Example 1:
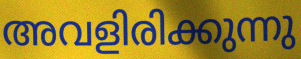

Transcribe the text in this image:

അവളിരിക്കുന്നു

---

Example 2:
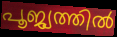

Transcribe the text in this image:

പൂജ്യത്തിൽ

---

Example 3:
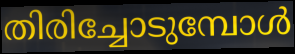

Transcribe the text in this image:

തിരിച്ചോടുമ്പോൾ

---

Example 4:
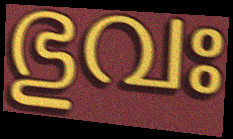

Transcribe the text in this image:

ഭുവഃ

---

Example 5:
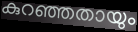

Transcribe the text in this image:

കുറഞ്ഞതായും